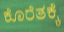
ಕೊರೆತಕ್ಕೆ